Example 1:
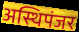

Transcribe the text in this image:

अस्थिपंजर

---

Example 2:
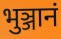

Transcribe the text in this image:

भुञ्जानं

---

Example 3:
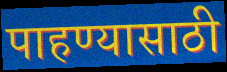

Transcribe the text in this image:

पाहण्यासाठी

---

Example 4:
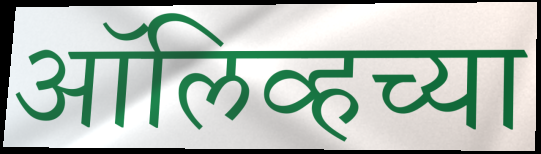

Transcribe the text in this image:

ऑलिव्हच्या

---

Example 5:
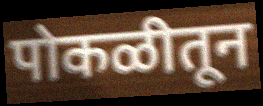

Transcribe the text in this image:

पोकळीतून